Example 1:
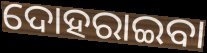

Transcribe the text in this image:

ଦୋହରାଇବା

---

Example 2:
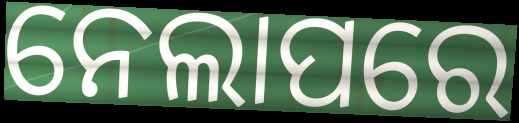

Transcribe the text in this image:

ନେଲାପରେ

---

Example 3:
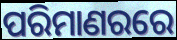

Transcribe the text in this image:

ପରିମାଣରରେ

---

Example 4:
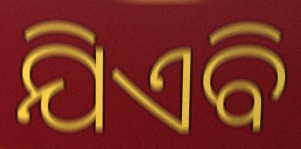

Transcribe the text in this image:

ଯିଏବି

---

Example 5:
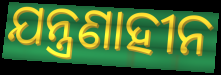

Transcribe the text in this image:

ଯନ୍ତ୍ରଣାହୀନ